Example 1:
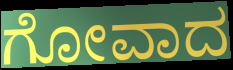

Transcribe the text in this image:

ಗೋವಾದ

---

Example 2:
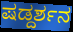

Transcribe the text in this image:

ಷಡ್ದರ್ಶನ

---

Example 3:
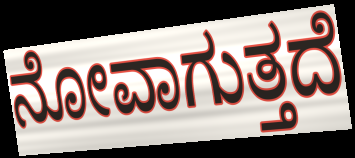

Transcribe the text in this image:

ನೋವಾಗುತ್ತದೆ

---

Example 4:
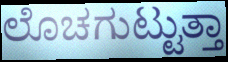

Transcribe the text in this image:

ಲೊಚಗುಟ್ಟುತ್ತಾ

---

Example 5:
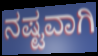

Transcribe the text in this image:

ನಷ್ಟವಾಗಿ